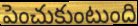
పెంచుకుంటుంది